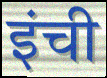
इंची